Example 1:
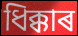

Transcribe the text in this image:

ধিক্কাৰ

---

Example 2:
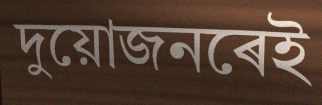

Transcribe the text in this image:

দুয়োজনৰেই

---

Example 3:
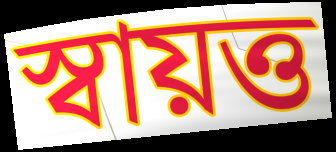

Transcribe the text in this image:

স্বায়ত্ত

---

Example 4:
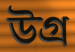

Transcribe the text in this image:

উগ্ৰ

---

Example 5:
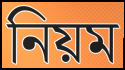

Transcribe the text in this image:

নিয়ম